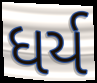
ધર્ય